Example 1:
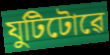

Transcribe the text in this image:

যুটিটোৱে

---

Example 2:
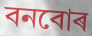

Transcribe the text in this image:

বনবোৰ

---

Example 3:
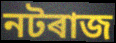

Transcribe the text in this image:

নটৰাজ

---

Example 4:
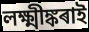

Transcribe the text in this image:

লক্ষ্মীঙ্কৰাই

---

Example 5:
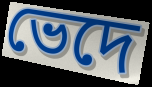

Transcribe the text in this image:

ভেদে